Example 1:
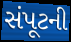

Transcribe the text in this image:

સંપૂટની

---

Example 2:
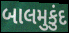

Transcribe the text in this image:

બાલમુકુંદ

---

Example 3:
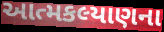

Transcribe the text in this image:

આત્મકલ્યાણના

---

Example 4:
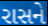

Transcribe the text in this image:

રાસને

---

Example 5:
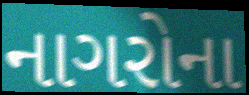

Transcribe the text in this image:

નાગરોના